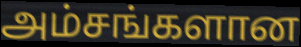
அம்சங்களான